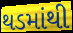
થડમાંથી